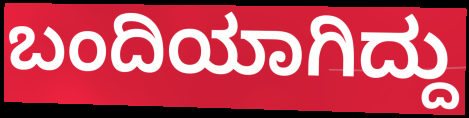
ಬಂದಿಯಾಗಿದ್ದು